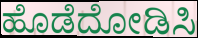
ಹೊಡೆದೋಡಿಸಿ